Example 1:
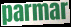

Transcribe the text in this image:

parmar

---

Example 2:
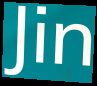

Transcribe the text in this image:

Jin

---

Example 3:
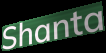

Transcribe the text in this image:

Shanta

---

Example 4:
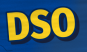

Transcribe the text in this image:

DSO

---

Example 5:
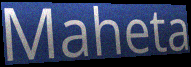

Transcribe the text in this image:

Maheta